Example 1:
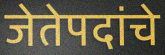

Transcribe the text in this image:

जेतेपदांचे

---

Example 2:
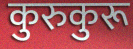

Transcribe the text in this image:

कुरुकुरू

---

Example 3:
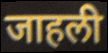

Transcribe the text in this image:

जाहली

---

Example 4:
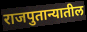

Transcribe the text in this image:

राजपुतान्यातील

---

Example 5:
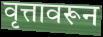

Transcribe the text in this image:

वृत्तावरून